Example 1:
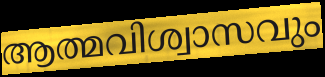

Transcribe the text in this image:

ആത്മവിശ്വാസവും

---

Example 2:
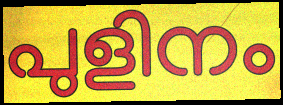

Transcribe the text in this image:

പുളിനം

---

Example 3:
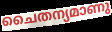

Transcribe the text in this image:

ചൈതന്യമാണു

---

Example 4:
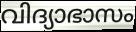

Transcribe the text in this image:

വിദ്യാഭാസം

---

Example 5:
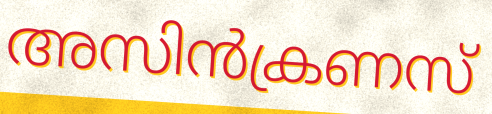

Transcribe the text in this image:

അസിൻക്രണസ്